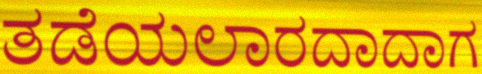
ತಡೆಯಲಾರದಾದಾಗ